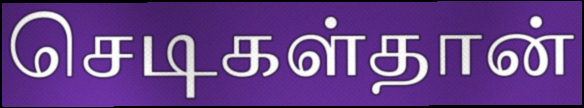
செடிகள்தான்